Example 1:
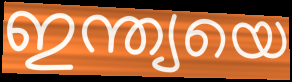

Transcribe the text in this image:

ഇന്ത്യയെ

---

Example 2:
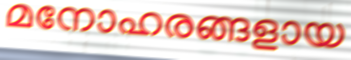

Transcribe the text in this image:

മനോഹരങ്ങളായ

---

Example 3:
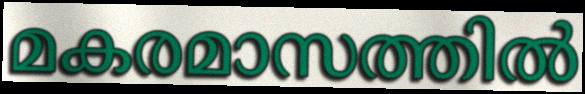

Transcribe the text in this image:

മകരമാസത്തിൽ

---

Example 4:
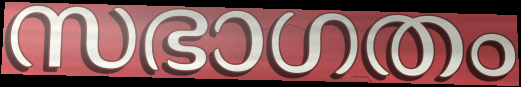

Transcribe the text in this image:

സഭാഗതം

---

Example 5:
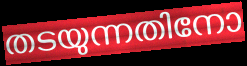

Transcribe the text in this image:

തടയുന്നതിനോ